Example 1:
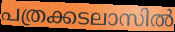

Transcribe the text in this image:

പത്രക്കടലാസിൽ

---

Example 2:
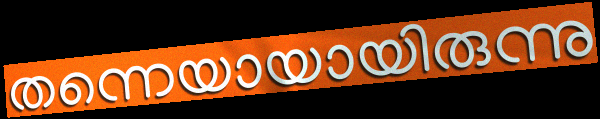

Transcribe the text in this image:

തന്നെയായായിരുന്നു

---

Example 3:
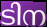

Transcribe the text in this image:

ടിന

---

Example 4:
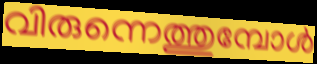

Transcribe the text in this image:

വിരുന്നെത്തുമ്പോൾ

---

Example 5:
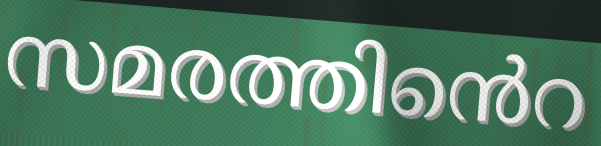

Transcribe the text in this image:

സമരത്തിൻെറ